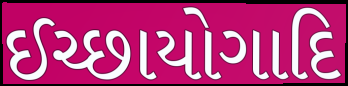
ઈચ્છાયોગાદિ